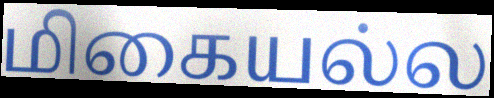
மிகையல்ல